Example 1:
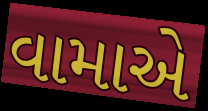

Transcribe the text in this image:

વામાએ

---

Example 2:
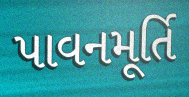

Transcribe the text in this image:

પાવનમૂર્તિ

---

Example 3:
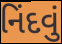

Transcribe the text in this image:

નિંદવું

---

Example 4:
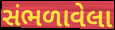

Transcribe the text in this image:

સંભળાવેલા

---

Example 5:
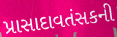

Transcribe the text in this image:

પ્રાસાદાવતંસકની